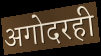
अगोदरही